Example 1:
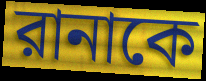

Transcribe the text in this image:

রানাকে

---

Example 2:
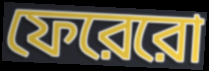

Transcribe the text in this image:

ফেরেরো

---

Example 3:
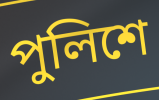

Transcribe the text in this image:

পুলিশে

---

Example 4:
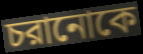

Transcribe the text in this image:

চরানোকে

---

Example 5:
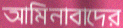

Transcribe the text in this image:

আমিনাবাদের